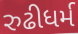
રુઢીધર્મ